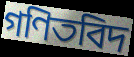
গণিতবিদ